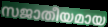
സജാതീയമായ